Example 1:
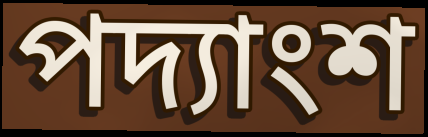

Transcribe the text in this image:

পদ্যাংশ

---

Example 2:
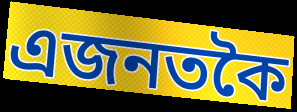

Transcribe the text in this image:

এজনতকৈ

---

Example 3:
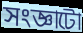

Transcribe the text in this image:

সংজ্ঞাটো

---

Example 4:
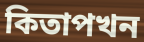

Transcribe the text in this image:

কিতাপখন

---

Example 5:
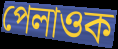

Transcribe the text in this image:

পেলাওক